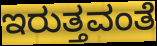
ಇರುತ್ತವಂತೆ